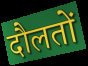
दौलतों